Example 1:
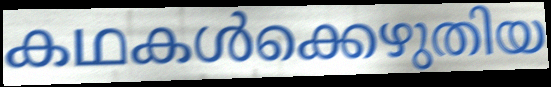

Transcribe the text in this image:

കഥകൾക്കെഴുതിയ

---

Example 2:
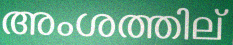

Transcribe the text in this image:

അംശത്തില്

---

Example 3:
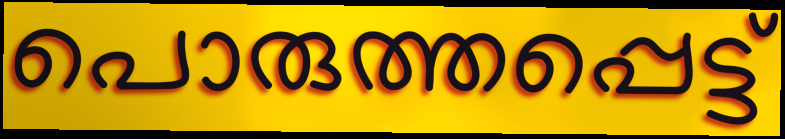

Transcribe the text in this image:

പൊരുത്തപ്പെട്ട്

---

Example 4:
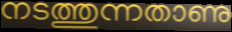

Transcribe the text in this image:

നടത്തുന്നതാണു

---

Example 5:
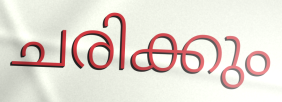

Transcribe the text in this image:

ചരിക്കും